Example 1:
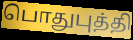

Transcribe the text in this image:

பொதுபுத்தி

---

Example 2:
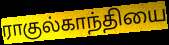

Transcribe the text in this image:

ராகுல்காந்தியை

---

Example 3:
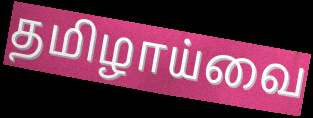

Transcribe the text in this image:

தமிழாய்வை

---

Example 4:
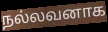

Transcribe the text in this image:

நல்லவனாக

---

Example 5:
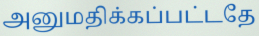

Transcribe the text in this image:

அனுமதிக்கப்பட்டதே